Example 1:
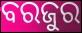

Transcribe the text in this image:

ବରଜୁର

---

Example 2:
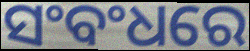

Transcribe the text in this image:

ସଂବଂଧରେ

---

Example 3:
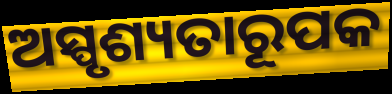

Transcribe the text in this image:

ଅସ୍ପୃଶ୍ୟତାରୂପକ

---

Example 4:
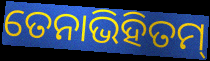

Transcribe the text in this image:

ତେନାଭିହିତମ୍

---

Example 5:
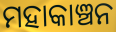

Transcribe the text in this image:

ମହାକାଞ୍ଚନ